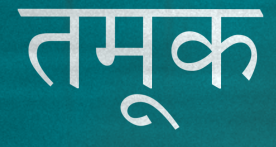
तमूक